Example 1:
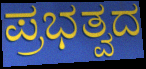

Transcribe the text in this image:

ಪ್ರಭತ್ವದ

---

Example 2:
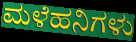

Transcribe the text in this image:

ಮಳೆಹನಿಗಳು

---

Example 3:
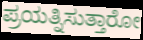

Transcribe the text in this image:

ಪ್ರಯತ್ನಿಸುತ್ತಾರೋ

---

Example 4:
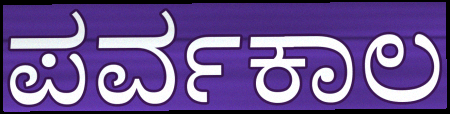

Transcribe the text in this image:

ಪರ್ವಕಾಲ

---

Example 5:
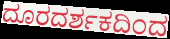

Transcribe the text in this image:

ದೂರದರ್ಶಕದಿಂದ